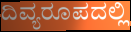
ದಿವ್ಯರೂಪದಲ್ಲಿ